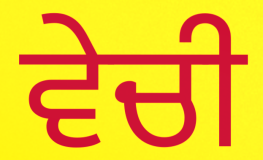
ਵੇਚੀ